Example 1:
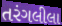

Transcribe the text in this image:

તરંગલીલા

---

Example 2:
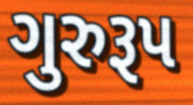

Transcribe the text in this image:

ગુરુરૂપ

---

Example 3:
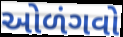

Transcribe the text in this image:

ઓળંગવો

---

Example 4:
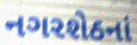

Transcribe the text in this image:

નગરશેઠનાં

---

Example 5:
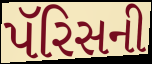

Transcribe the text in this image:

પૅરિસની